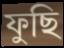
ফুছি